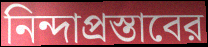
নিন্দাপ্রস্তাবের